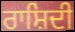
ਰਾਸ਼ਿਦੀ